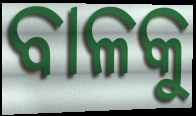
ବାଳକୁ